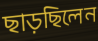
ছাড়ছিলেন